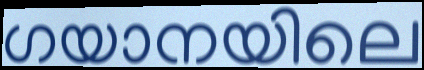
ഗയാനയിലെ